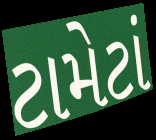
ટામેટાં